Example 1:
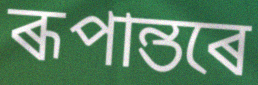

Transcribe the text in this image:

ৰূপান্তৰে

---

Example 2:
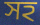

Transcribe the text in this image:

সহ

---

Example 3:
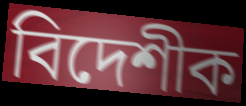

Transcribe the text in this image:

বিদেশীক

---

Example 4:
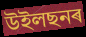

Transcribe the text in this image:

উইলছনৰ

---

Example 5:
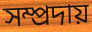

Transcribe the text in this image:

সম্প্ৰদায়